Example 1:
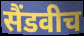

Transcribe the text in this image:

सैंडवीच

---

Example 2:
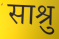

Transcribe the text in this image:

साश्रु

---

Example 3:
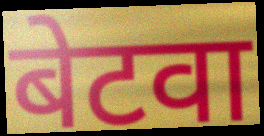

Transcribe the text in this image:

बेटवा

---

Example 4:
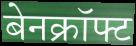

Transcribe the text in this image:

बेनक्रॉफ्ट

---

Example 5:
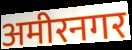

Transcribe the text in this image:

अमीरनगर